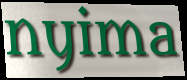
nyima